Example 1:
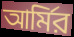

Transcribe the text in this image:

আর্মির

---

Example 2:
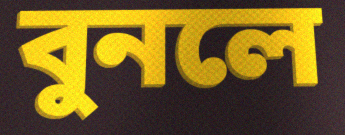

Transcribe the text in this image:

বুনলে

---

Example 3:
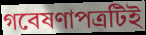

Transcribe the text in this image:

গবেষণাপত্রটিই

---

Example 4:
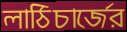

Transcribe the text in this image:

লাঠিচার্জের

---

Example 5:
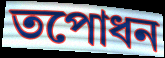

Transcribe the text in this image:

তপোধন